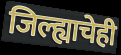
जिल्ह्याचेही